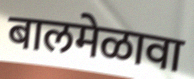
बालमेळावा